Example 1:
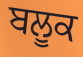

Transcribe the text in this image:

ਬਲੂਕ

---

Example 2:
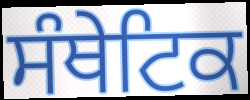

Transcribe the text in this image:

ਸੰਥੇਟਿਕ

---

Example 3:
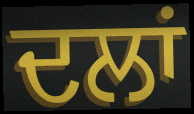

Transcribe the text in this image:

ਦਲਾਂ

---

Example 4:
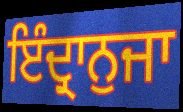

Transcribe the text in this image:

ਇੰਦ੍ਰਾਨੁਜਾ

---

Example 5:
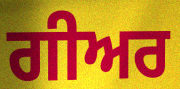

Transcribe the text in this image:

ਗੀਅਰ